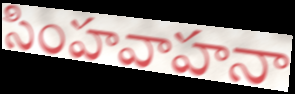
సింహవాహనా